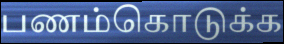
பணம்கொடுக்க